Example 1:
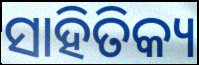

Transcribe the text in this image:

ସାହିତିକ୍ୟ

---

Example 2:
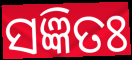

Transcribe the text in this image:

ସଜ୍ଞିତଃ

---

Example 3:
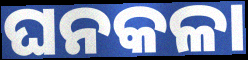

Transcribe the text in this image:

ଘନକଳା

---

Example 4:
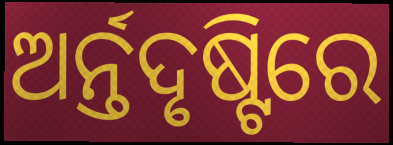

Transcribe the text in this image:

ଅର୍ନ୍ତଦୃଷ୍ଟିରେ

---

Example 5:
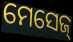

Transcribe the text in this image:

ମେସେଜ୍